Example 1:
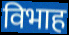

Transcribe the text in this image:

विभाह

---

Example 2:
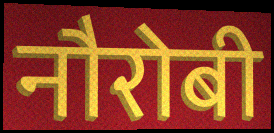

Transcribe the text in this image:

नौरोबी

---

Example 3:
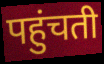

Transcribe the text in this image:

पहुंचती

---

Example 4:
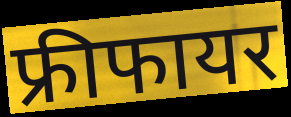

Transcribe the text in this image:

फ्रीफायर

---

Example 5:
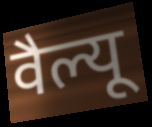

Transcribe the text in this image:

वैल्यू